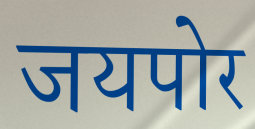
जयपोर